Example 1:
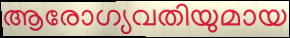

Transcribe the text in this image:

ആരോഗ്യവതിയുമായ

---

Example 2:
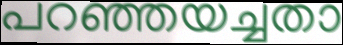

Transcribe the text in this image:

പറഞ്ഞയച്ചതാ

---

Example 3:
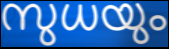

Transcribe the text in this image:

സുധയും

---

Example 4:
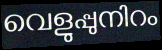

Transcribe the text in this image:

വെളുപ്പുനിറം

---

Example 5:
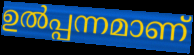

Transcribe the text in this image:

ഉൽപ്പന്നമാണ്